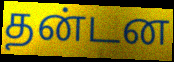
தன்டன